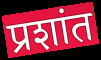
प्रशांत